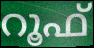
റൂഫ്